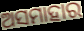
ଅସମାହାର